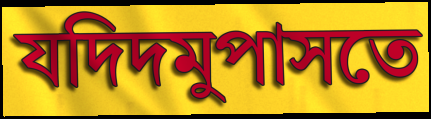
যদিদমুপাসতে